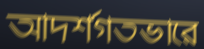
আদৰ্শগতভাৱে